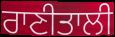
ਰਾਣੀਤਾਲੀ